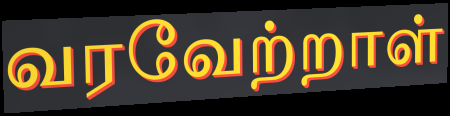
வரவேற்றாள்